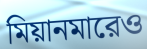
মিয়ানমারেও